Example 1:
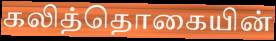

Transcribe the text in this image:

கலித்தொகையின்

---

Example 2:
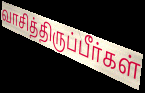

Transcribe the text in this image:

வாசித்திருப்பீர்கள்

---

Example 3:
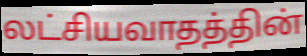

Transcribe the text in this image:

லட்சியவாதத்தின்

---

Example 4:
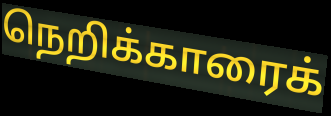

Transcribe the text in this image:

நெறிக்காரைக்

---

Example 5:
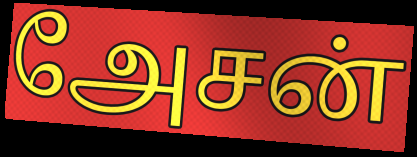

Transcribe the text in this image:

அேசன்